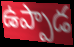
ఉప్పాడ